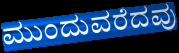
ಮುಂದುವರೆದವು